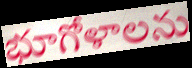
భూగోళాలను